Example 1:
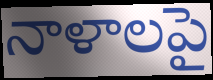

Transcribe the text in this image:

నాళాలపై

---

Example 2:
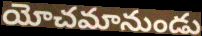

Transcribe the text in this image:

యోచమానుండు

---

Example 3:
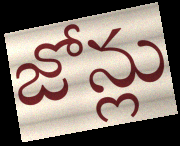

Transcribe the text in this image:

జోన్లు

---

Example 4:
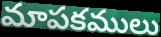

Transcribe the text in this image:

మాపకములు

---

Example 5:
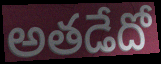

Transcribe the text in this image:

అతడేదో